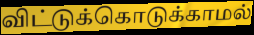
விட்டுக்கொடுக்காமல்